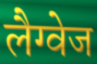
लैग्वेज